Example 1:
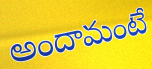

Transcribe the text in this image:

అందామంటే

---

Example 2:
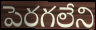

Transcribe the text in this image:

పెరగలేని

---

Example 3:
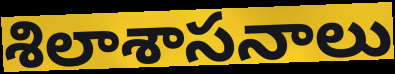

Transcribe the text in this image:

శిలాశాసనాలు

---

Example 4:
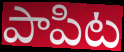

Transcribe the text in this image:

పాపిట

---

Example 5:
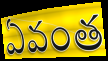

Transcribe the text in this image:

ఏవంత